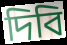
দিবি